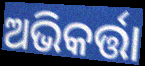
ଅଭିକର୍ତ୍ତା